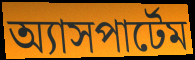
অ্যাসপার্টেম